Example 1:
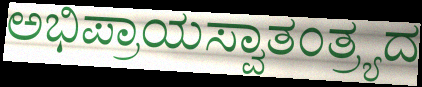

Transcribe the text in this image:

ಅಭಿಪ್ರಾಯಸ್ವಾತಂತ್ರ್ಯದ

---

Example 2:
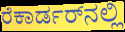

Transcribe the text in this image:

ರೆಕಾರ್ಡರ್‌ನಲ್ಲಿ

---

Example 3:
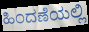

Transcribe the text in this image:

ಹಿಂದಣೆಯಲ್ಲಿ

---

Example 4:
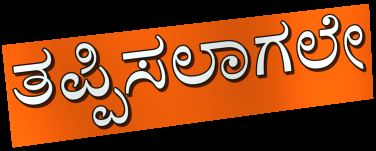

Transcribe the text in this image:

ತಪ್ಪಿಸಲಾಗಲೇ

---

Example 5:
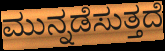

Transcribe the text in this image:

ಮುನ್ನಡೆಸುತ್ತದೆ